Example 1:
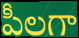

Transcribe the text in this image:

పీలగా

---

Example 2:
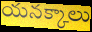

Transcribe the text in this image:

యనక్కాలు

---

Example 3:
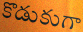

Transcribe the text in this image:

కొడుకుగా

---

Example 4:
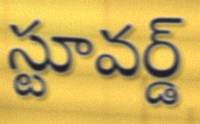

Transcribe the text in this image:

స్టూవర్డ్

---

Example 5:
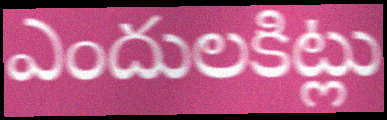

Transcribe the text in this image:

ఎందులకిట్లు